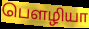
பௌழியா